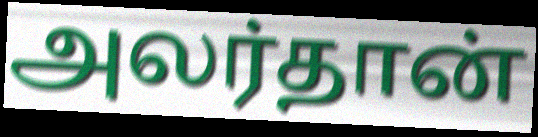
அலர்தான்